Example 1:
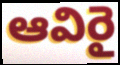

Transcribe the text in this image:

ఆవిరై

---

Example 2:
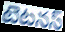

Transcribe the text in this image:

టెటనస్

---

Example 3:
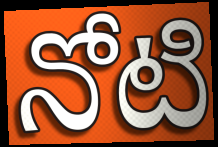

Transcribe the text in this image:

నోటి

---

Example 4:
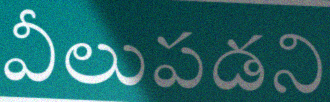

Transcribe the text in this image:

వీలుపడని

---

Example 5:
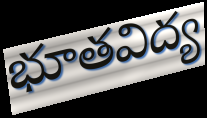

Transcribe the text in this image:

భూతవిద్య